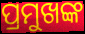
ପ୍ରମୁଖଙ୍କ